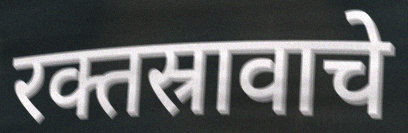
रक्तस्रावाचे